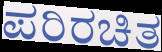
ಪರಿರಚಿತ